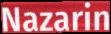
Nazarin